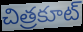
చిత్రకూట్